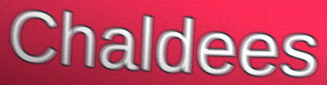
Chaldees